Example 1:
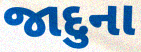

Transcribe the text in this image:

જાદુના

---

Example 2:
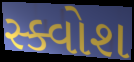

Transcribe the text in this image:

સ્ક્વોશ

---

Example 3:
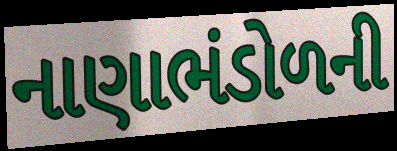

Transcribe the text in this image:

નાણાભંડોળની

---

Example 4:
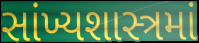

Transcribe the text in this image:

સાંખ્યશાસ્ત્રમાં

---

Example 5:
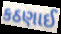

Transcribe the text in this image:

કઠણાઈ